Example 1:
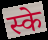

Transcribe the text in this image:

स्के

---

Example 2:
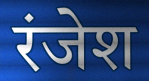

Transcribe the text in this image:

रंजेश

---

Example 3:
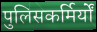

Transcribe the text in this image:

पुलिसकर्मिर्यों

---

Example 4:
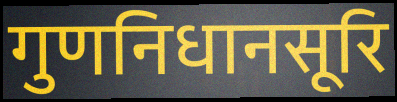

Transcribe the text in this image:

गुणनिधानसूरि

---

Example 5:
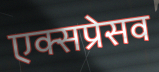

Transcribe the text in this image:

एक्सप्रेसव